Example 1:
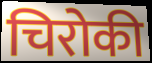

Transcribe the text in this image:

चिरोकी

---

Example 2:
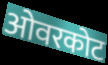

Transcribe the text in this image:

ओवरकोट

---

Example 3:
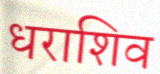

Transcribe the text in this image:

धराशिव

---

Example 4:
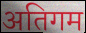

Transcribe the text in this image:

अतिगम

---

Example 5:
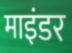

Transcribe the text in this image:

माइंडर